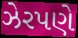
ઝેરપણે